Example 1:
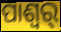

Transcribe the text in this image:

ପାଶ୍ୱର୍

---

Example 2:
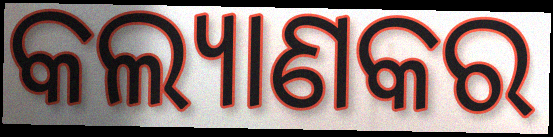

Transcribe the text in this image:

କଲ୍ୟାଣକର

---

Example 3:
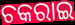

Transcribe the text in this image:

ଚକରାଇ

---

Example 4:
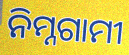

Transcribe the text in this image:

ନିମ୍ନଗାମୀ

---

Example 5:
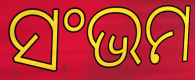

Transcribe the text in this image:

ସଂଭମ